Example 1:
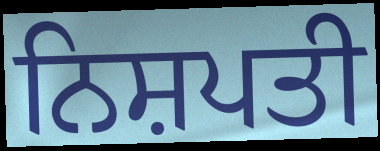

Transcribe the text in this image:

ਨਿਸ਼ਪਤੀ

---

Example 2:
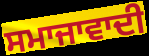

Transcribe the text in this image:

ਸਮਾਜਾਵਾਦੀ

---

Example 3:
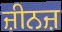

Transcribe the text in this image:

ਜ਼ੀਨਜ਼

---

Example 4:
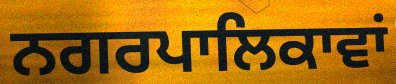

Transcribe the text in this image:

ਨਗਰਪਾਲਿਕਾਵਾਂ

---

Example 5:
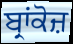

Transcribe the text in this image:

ਬ੍ਰਾਂਕੋਜ਼